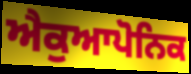
ਐਕੁਆਪੋਨਿਕ